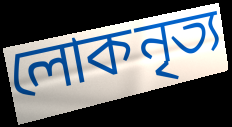
লোকনৃত্য